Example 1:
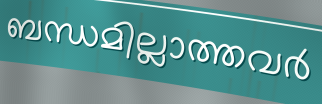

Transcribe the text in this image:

ബന്ധമില്ലാത്തവർ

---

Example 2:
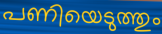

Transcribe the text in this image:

പണിയെടുത്തും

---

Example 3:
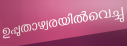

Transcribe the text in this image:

ഉപ്പുതാഴ്വരയിൽവെച്ചു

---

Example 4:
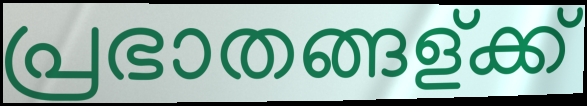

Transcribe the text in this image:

പ്രഭാതങ്ങള്ക്ക്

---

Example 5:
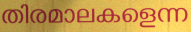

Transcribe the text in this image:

തിരമാലകളെന്ന